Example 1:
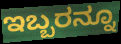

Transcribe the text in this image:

ಇಬ್ಬರನ್ನೂ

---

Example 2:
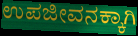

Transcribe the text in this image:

ಉಪಜೀವನಕ್ಕಾಗಿ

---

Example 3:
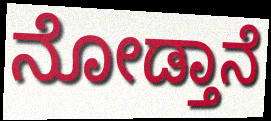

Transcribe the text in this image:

ನೋಡ್ತಾನೆ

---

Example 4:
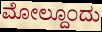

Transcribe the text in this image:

ಮೋಲ್ದೂಂದು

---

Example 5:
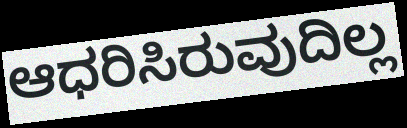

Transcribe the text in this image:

ಆಧರಿಸಿರುವುದಿಲ್ಲ